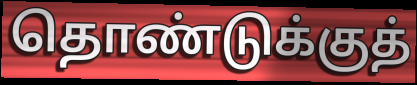
தொண்டுக்குத்